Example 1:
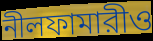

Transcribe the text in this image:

নীলফামারীও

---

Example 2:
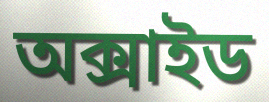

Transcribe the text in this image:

অক্সাইড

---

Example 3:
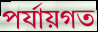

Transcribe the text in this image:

পর্যায়গত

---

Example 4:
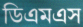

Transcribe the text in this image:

ডিএমএস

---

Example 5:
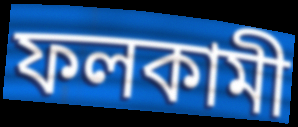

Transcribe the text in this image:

ফলকামী